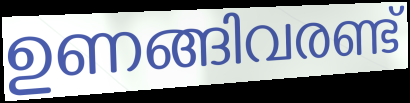
ഉണങ്ങിവരണ്ട്